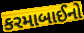
કરમાબાઈનો